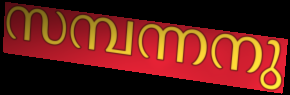
സമ്പന്നനു